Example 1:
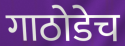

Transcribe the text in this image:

गाठोडेच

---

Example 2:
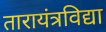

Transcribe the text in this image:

तारायंत्रविद्या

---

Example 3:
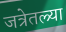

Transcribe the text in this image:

जत्रेतल्या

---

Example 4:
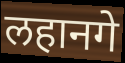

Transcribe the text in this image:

लहानगे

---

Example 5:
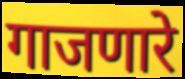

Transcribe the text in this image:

गाजणारे